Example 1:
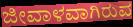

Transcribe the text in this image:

ಜೀವಾಳವಾಗಿರುವ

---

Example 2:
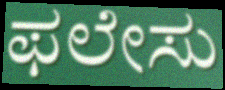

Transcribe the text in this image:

ಫಲೇಸು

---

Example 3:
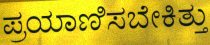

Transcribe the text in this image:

ಪ್ರಯಾಣಿಸಬೇಕಿತ್ತು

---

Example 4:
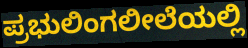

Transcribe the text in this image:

ಪ್ರಭುಲಿಂಗಲೀಲೆಯಲ್ಲಿ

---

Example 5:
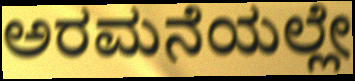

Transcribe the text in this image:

ಅರಮನೆಯಲ್ಲೇ